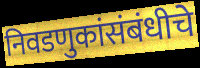
निवडणुकांसंबंधीचे